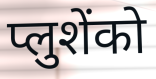
प्लुशेंको